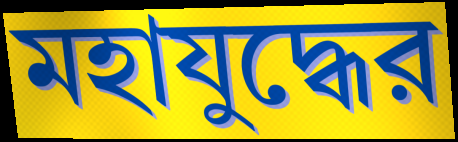
মহাযুদ্ধের